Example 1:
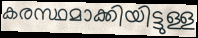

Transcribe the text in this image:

കരസ്ഥമാക്കിയിട്ടുള്ള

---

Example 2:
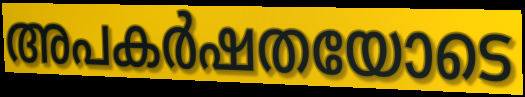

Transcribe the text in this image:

അപകർഷതയോടെ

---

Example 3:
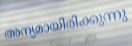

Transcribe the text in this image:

അന്യമായിരിക്കുന്നു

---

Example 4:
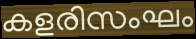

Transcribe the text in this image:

കളരിസംഘം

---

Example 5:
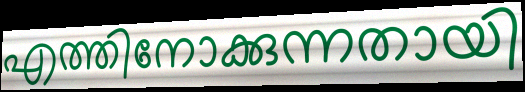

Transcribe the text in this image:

എത്തിനോക്കുന്നതായി